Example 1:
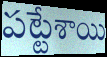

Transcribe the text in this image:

పట్టేశాయి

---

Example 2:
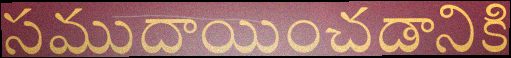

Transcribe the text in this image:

సముదాయించడానికి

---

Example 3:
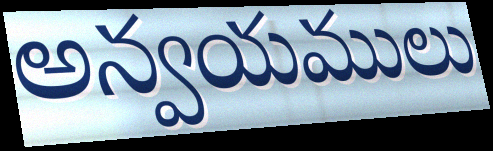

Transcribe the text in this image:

అన్వయములు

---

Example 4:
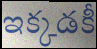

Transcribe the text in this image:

ఇక్కడకీ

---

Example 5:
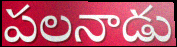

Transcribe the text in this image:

పలనాడు